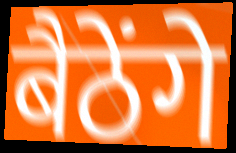
बैठेंगे